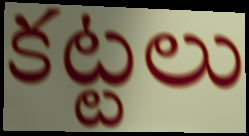
కట్టలు